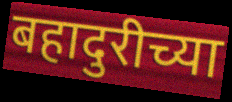
बहादुरीच्या